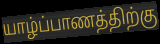
யாழ்ப்பாணத்திற்கு